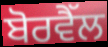
ਬੋਰਵੈੱਲ